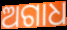
ଅଗାଧ